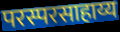
परस्परसाहाय्य